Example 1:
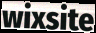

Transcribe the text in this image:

wixsite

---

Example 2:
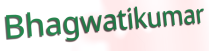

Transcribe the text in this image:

Bhagwatikumar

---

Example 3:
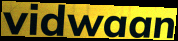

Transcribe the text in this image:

vidwaan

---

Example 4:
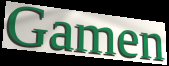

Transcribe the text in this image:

Gamen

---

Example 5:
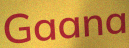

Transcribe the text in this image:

Gaana